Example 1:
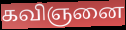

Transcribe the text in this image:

கவிஞனை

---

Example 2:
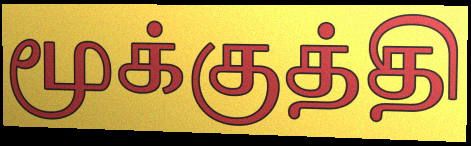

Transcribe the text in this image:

மூக்குத்தி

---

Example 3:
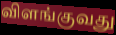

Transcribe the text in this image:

விளங்குவது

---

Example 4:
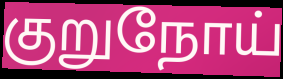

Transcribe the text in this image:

குறுநோய்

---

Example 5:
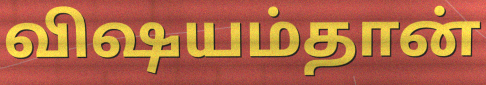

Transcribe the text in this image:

விஷயம்தான்